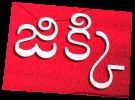
జిక్కి